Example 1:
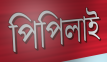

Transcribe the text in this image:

পিপিলাই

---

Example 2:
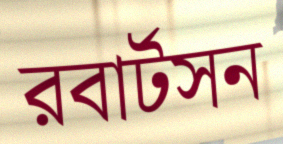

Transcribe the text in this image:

রবার্টসন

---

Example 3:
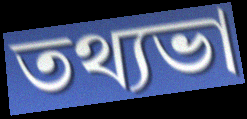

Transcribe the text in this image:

তথ্যভা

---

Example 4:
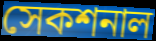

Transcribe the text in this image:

সেকশনাল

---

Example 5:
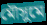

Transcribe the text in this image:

মৌসুমে